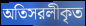
অতিসরলীকৃত